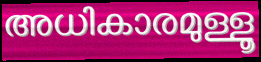
അധികാരമുള്ളൂ